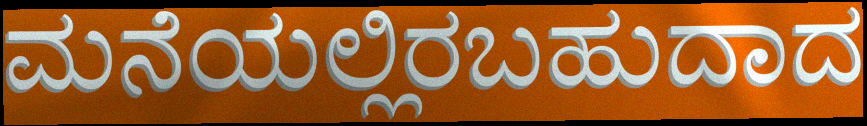
ಮನೆಯಲ್ಲಿರಬಹುದಾದ